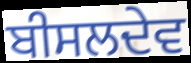
ਬੀਸਲਦੇਵ